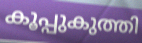
കൂപ്പുകുത്തി